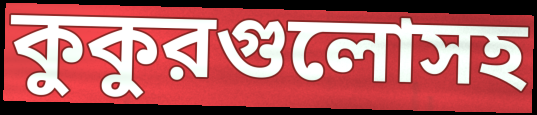
কুকুরগুলোসহ